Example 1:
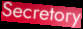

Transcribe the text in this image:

Secretory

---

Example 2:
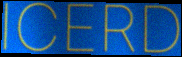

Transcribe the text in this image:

ICERD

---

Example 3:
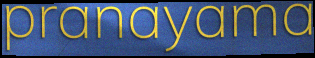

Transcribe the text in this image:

pranayama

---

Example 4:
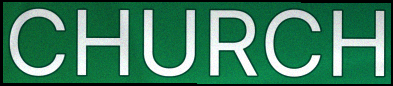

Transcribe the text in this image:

CHURCH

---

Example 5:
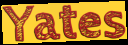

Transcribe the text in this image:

Yates